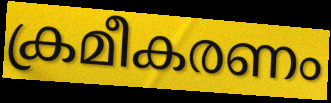
ക്രമീകരണം